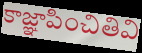
కాజ్ఞాపించితివి